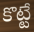
కొట్టే